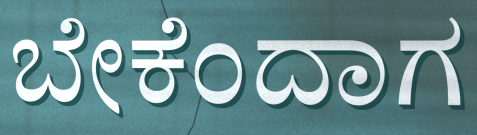
ಬೇಕೆಂದಾಗ